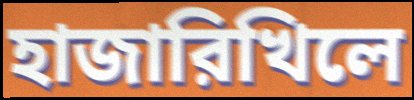
হাজারিখিলে